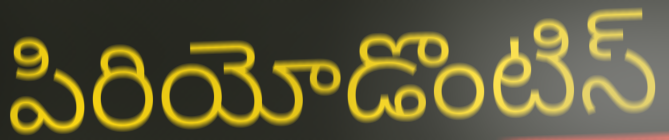
పిరియోడొంటిస్